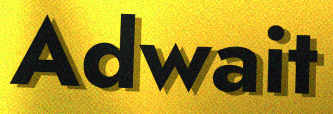
Adwait